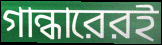
গান্ধারেরই